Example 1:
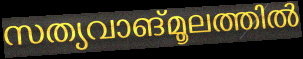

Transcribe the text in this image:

സത്യവാങ്മൂലത്തിൽ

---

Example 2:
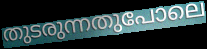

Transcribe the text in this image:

തുടരുന്നതുപോലെ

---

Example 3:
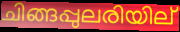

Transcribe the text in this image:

ചിങ്ങപ്പുലരിയില്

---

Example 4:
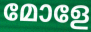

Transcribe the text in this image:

മോളേ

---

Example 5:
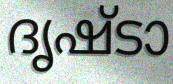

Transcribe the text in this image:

ദൃഷ്ടാ